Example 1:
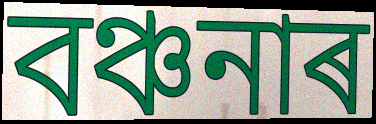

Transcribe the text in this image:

বঞ্চনাৰ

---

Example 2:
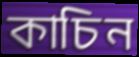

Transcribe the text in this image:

কাচিন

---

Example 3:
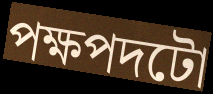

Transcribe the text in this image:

পক্ষপদটো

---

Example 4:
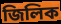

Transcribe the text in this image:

জিলিক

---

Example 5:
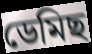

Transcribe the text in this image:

ডেমিছ